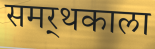
समर्थकाला